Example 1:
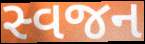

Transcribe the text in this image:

સ્વજન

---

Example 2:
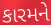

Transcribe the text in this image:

કારમને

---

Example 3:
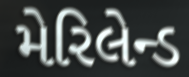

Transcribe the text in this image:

મેરિલેન્ડ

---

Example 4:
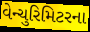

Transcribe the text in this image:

વેન્ચુરિમિટરના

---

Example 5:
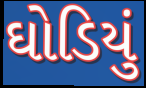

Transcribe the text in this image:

ઘોડિયું